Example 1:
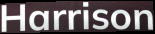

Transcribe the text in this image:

Harrison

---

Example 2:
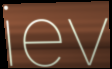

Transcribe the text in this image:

iev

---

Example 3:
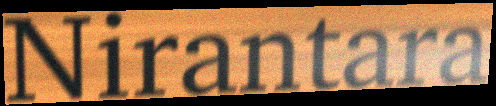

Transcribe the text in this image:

Nirantara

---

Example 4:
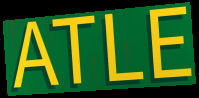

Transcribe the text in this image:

ATLE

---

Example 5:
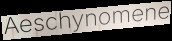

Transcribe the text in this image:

Aeschynomene